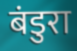
बंडुरा